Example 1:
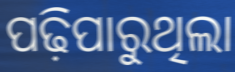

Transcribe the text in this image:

ପଢ଼ିପାରୁଥିଲା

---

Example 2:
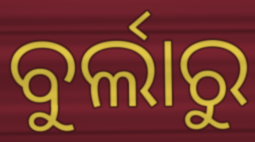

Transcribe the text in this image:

ବୁର୍ଲାରୁ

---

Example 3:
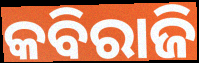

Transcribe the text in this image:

କବିରାଜି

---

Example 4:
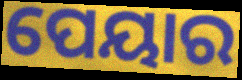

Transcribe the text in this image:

ପେୟାର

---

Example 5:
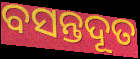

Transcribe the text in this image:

ବସନ୍ତଦୂତ